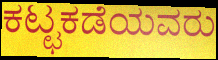
ಕಟ್ಟಕಡೆಯವರು